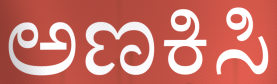
ಅಣಕಿಸಿ